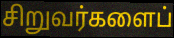
சிறுவர்களைப்